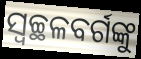
ସ୍ବଚ୍ଛଳବର୍ଗଙ୍କୁ